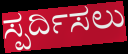
ಸ್ಪರ್ದಿಸಲು